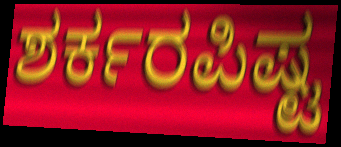
ಶರ್ಕರಪಿಷ್ಟ